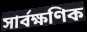
সার্বক্ষণিক